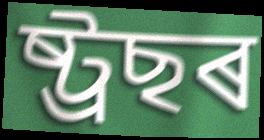
ষ্ট্ৰছৰ